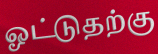
ஓட்டுதற்கு